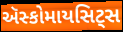
ઍસ્કોમાયસિટ્સ